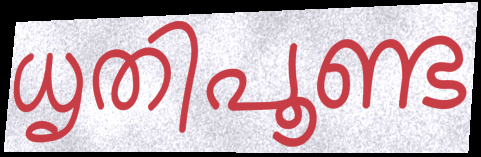
ധൃതിപൂണ്ട